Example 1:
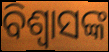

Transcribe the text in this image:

ବିଶ୍ୱାସଙ୍କ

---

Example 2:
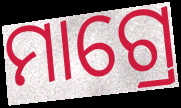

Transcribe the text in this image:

ମାଗ୍ରେ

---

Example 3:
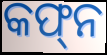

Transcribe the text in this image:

କଫ୍‌ନ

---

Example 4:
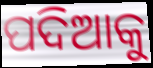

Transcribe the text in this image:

ପଦିଆକୁ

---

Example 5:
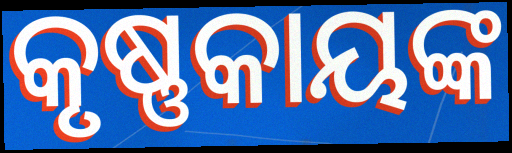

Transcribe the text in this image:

କୃଷ୍ଣକାୟଙ୍କ